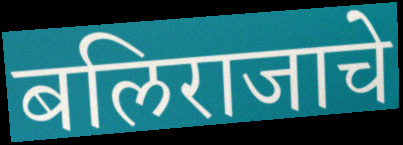
बलिराजाचे